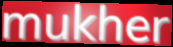
mukher